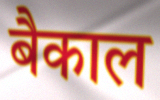
बैकाल